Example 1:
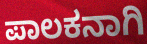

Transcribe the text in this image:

ಪಾಲಕನಾಗಿ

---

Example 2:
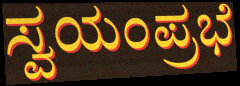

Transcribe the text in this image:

ಸ್ವಯಂಪ್ರಭೆ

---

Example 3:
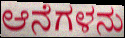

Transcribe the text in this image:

ಆನೆಗಳನು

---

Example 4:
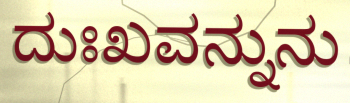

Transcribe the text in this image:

ದುಃಖವನ್ನುನು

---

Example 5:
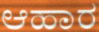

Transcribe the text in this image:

ಆಹಾರ